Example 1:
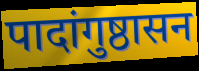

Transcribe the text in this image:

पादांगुष्ठासन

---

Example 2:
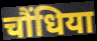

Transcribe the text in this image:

चौंधिया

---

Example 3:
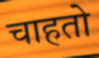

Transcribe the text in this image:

चाहतो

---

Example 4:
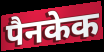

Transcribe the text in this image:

पैनकेक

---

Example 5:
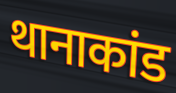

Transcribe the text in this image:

थानाकांड